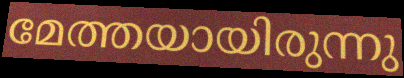
മേത്തയായിരുന്നു